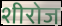
शीरोज